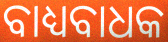
ବାଧ୍ୟବାଧକ